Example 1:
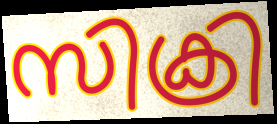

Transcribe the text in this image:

സിക്രി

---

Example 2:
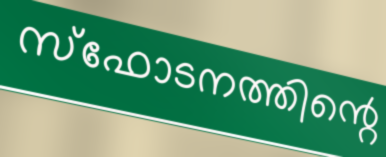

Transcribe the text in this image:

സ്ഫോടനത്തിന്റെ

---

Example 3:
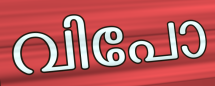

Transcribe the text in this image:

വിപോ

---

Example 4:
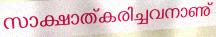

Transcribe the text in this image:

സാക്ഷാത്കരിച്ചവനാണു്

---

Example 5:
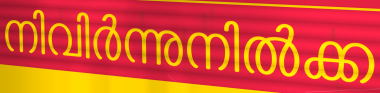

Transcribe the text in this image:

നിവിർന്നുനിൽക്ക